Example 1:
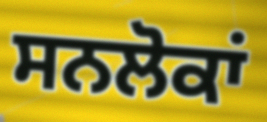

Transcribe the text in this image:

ਸਨਲੋਕਾਂ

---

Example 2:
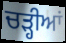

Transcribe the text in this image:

ਚੜ੍ਹੀਆਂ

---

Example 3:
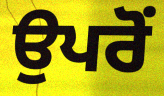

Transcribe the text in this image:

ਉਪਰੋਂ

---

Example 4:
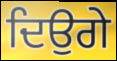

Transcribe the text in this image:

ਦਿਉਗੇ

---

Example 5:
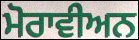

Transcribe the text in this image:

ਮੋਰਾਵੀਅਨ